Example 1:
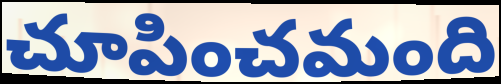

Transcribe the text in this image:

చూపించమంది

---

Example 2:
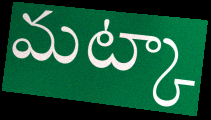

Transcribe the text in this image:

మట్కా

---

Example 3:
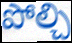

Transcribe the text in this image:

పోల్చి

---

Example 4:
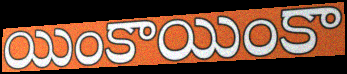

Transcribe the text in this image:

యింకాయింకా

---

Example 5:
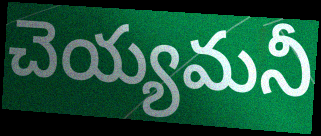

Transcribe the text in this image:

చెయ్యమనీ